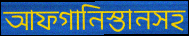
আফগানিস্তানসহ